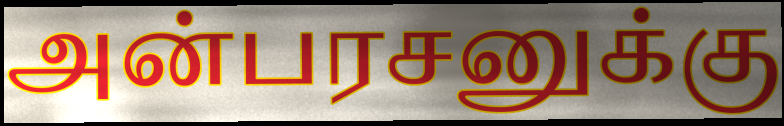
அன்பரசனுக்கு